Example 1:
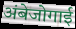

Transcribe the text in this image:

अंबेजोगाई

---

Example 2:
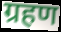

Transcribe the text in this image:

ग्रहण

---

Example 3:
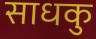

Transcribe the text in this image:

साधकु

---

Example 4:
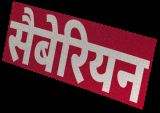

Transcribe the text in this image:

सैबेरियन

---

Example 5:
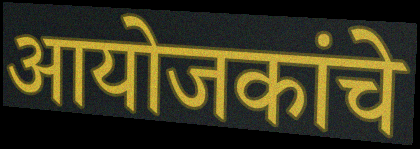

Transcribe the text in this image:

आयोजकांचे